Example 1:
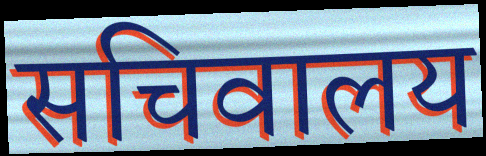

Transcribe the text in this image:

सचिवालय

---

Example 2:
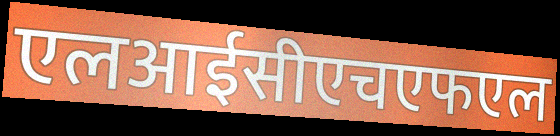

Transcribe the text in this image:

एलआईसीएचएफएल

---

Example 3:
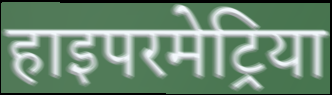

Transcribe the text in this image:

हाइपरमेट्रिया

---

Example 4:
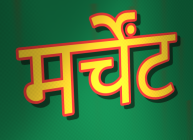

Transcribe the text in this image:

मर्चेंट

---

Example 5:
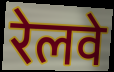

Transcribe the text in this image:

रेलवे